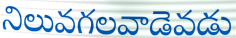
నిలువగలవాడెవడు